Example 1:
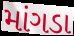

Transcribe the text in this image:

માંગડા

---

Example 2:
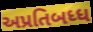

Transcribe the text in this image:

અપ્રતિબધ્ધ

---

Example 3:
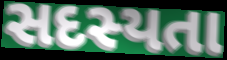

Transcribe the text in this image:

સદસ્યતા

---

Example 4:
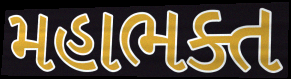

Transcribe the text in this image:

મહાભક્ત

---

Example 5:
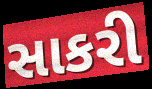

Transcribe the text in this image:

સાકરી